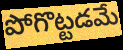
పోగొట్టడమే